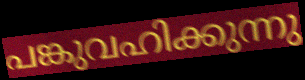
പങ്കുവഹിക്കുന്നു